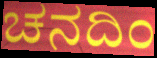
ಚನದಿಂ